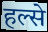
हल्से